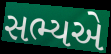
સભ્યએ